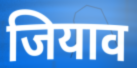
जियाव